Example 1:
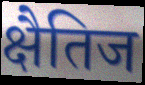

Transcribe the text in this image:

क्षैतिज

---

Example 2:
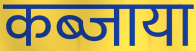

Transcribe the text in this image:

कब्जाया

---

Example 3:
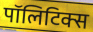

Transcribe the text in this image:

पॉलिटिक्स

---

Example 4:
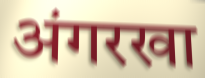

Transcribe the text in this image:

अंगरखा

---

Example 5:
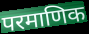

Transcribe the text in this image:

परमाणिक